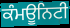
ਕੰਮਊਨਿਟੀ